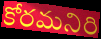
కోరమనిరి